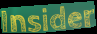
Insider